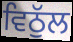
ਵਿਠੁੱਲ